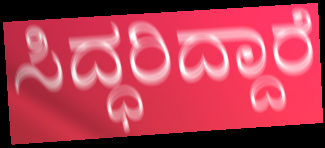
ಸಿದ್ಧರಿದ್ದಾರೆ